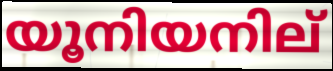
യൂനിയനില്